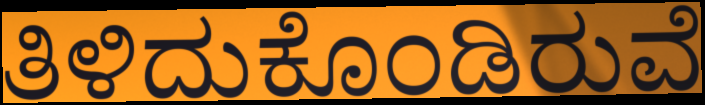
ತಿಳಿದುಕೊಂಡಿರುವೆ